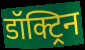
डॉक्ट्रिन